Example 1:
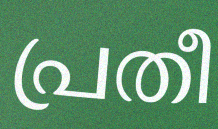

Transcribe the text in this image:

പ്രതീ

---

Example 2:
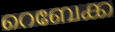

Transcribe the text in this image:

റെബേക്ക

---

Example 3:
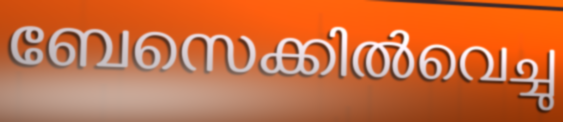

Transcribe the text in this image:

ബേസെക്കിൽവെച്ചു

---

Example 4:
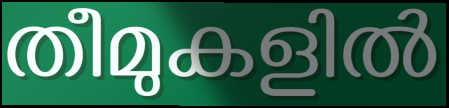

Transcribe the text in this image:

തീമുകളിൽ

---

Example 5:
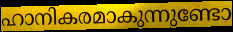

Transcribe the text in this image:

ഹാനികരമാകുന്നുണ്ടോ